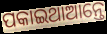
ପକାଇଥାଆନ୍ତେ